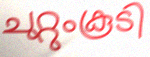
ചുറ്റുംകൂടി